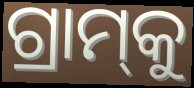
ଗ୍ରାମ୍‌କୁ